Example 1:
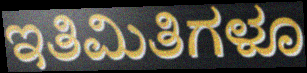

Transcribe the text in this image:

ಇತಿಮಿತಿಗಳೂ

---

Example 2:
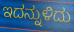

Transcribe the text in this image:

ಇದನ್ನುಳಿದು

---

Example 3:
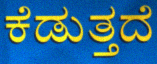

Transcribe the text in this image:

ಕೆಡುತ್ತದೆ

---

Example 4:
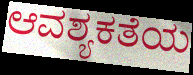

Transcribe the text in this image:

ಆವಶ್ಯಕತೆಯ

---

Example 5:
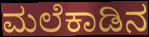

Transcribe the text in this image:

ಮಲೆಕಾಡಿನ